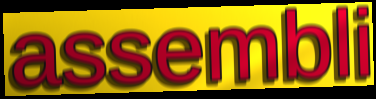
assembli